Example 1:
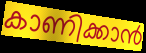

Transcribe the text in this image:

കാണിക്കാൻ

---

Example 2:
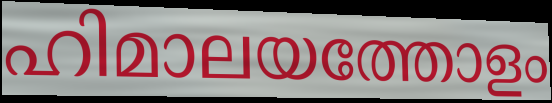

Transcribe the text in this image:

ഹിമാലയത്തോളം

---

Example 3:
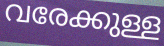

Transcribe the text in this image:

വരേക്കുള്ള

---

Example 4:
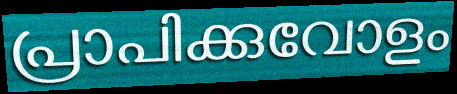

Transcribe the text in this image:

പ്രാപിക്കുവോളം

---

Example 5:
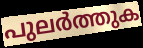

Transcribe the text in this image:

പുലർത്തുക